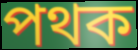
পথক